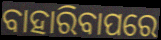
ବାହାରିବାପରେ